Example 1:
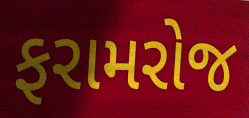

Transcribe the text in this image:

ફરામરોજ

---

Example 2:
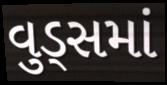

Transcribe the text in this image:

વુડ્સમાં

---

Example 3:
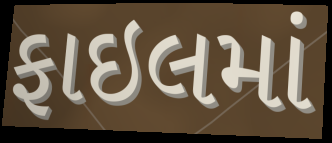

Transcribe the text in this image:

ફાઇલમાં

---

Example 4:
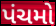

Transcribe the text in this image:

પંચમો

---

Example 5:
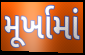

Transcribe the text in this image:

મૂર્ખામાં